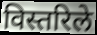
विस्तरिले